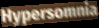
Hypersomnia